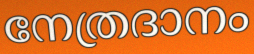
നേത്രദാനം